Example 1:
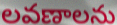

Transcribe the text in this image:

లవణాలను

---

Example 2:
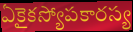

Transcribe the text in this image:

ఏకైకస్యోపకారస్య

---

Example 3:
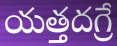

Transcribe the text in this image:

యత్తదగ్రే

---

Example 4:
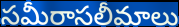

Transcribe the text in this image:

సమీరాసలీమాలు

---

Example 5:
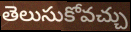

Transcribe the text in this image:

తెలుసుకోవచ్చు